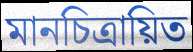
মানচিত্রায়িত